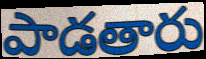
పాడతారు